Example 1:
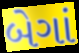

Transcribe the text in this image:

બેગાં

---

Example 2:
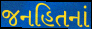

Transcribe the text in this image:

જનહિતનાં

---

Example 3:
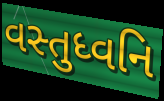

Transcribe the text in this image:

વસ્તુધ્વનિ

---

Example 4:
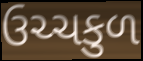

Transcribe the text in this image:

ઉચ્ચકુળ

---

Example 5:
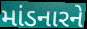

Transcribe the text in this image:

માંડનારને